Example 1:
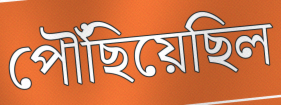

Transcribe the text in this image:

পৌঁছিয়েছিল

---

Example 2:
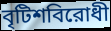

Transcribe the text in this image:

বৃটিশবিরোধী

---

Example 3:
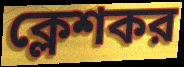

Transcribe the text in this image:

ক্লেশকর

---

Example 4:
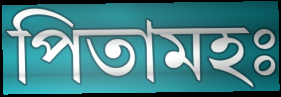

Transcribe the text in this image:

পিতামহঃ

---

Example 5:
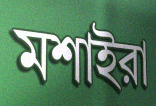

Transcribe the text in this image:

মশাইরা